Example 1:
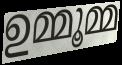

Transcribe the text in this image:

ഉമ്മൂമ്മ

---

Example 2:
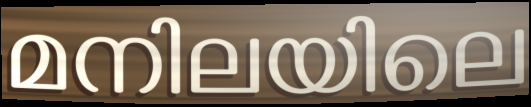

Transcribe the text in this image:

മനിലയിലെ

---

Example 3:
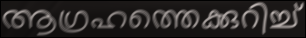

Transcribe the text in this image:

ആഗ്രഹത്തെക്കുറിച്ച്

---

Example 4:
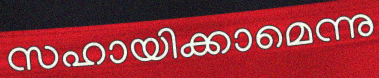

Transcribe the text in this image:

സഹായിക്കാമെന്നു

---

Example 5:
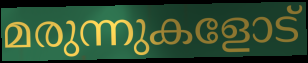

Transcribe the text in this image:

മരുന്നുകളോട്